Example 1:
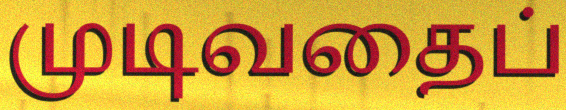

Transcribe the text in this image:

முடிவதைப்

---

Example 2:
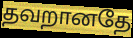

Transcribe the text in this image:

தவறானதே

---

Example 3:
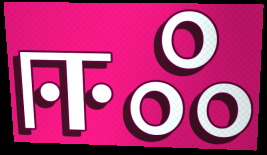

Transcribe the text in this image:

ஈஃ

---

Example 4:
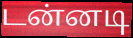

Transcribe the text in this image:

டன்னடி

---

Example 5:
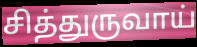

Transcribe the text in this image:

சித்துருவாய்